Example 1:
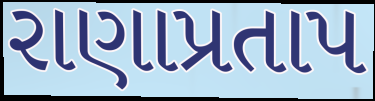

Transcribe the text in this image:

રાણાપ્રતાપ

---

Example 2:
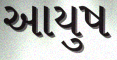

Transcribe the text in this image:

આયુષ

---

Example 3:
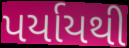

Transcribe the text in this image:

પર્યાયથી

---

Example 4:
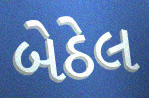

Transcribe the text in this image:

બેઠેલ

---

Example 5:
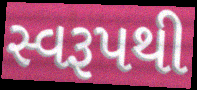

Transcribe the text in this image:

સ્વરૂપથી